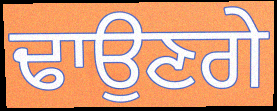
ਢਾਉਣਗੇ